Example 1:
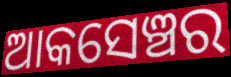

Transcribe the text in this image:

ଆକସେଞ୍ଚର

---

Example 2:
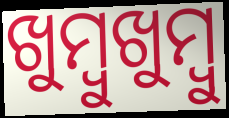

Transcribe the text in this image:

ଖୁମ୍ୱୁଖୁମ୍ବୁ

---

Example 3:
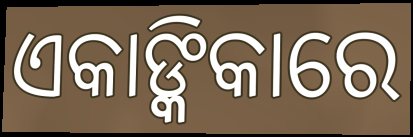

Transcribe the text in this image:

ଏକାଙ୍କିକାରେ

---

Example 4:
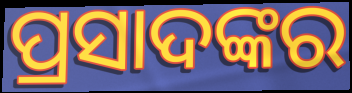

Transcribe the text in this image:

ପ୍ରସାଦଙ୍କର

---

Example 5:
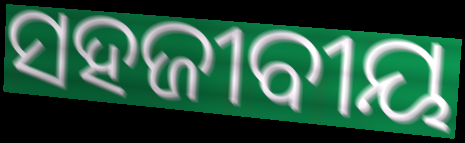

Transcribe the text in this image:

ସହଜୀବୀୟ